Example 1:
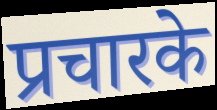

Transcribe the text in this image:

प्रचारके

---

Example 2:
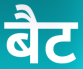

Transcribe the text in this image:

बैट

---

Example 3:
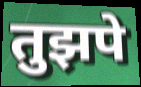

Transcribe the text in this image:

तुझपे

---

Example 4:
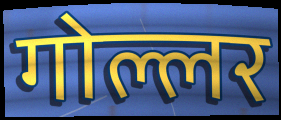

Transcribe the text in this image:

गोल्लर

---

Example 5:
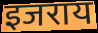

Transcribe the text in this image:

इजराय